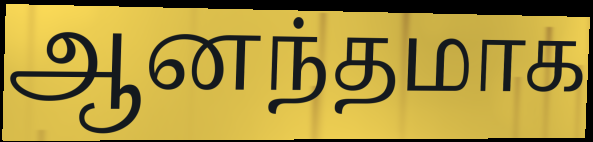
ஆனந்தமாக